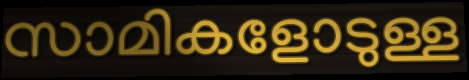
സാമികളോടുള്ള